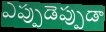
ఎప్పుడెప్పుడా